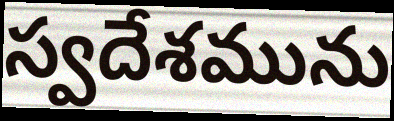
స్వదేశమును